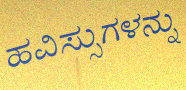
ಹವಿಸ್ಸುಗಳನ್ನು